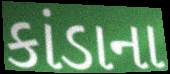
કાંડાના